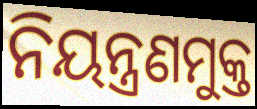
ନିୟନ୍ତ୍ରଣମୁକ୍ତ